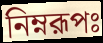
নিম্নরূপঃ